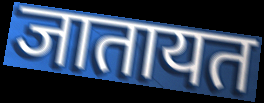
जातायत